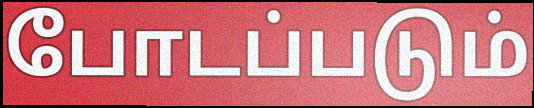
போடப்படும்